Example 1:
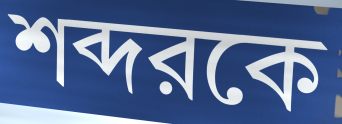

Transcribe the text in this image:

শব্দরকে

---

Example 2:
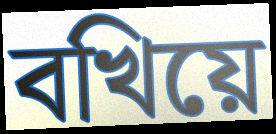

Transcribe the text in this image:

বখিয়ে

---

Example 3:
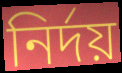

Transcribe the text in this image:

নির্দয়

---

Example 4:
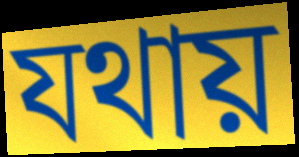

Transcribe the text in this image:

যথায়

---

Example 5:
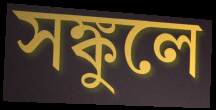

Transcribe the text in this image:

সঙ্কুলে